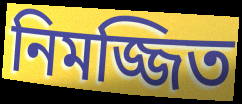
নিমজ্জিত